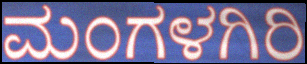
ಮಂಗಳಗಿರಿ